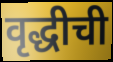
वृद्धीची